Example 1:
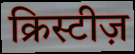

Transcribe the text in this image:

क्रिस्टीज़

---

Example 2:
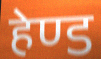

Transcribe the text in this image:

हेण्ड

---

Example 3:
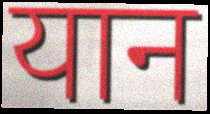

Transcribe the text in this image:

यान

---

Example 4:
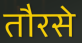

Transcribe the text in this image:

तौरसे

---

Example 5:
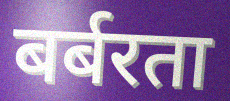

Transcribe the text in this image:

बर्बरता